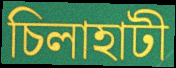
চিলাহাটী